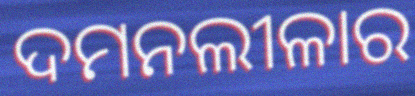
ଦମନଲୀଳାର